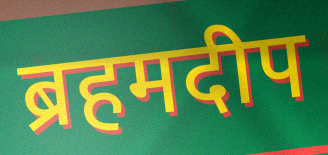
ब्रहमदीप